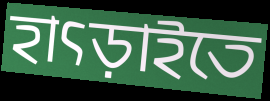
হাৎড়াইতে